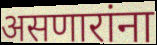
असणारांना